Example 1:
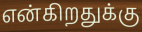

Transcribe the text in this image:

என்கிறதுக்கு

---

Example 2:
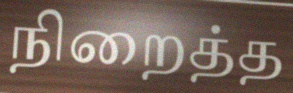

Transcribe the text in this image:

நிறைத்த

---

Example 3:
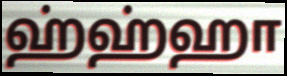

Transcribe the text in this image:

ஹ்ஹ்ஹா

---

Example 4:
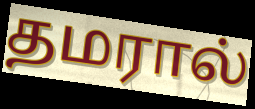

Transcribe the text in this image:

தமரால்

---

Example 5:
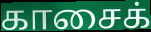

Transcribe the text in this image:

காசைக்